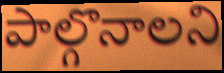
పాల్గొనాలని